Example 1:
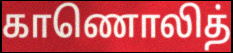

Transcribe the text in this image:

காணொலித்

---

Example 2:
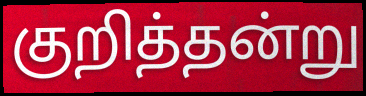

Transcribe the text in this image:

குறித்தன்று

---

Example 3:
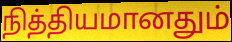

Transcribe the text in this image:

நித்தியமானதும்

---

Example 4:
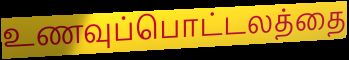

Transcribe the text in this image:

உணவுப்பொட்டலத்தை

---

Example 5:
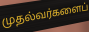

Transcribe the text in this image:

முதல்வர்களைப்